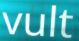
vult